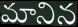
మానిన